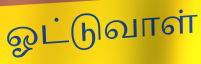
ஓட்டுவாள்